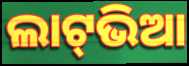
ଲାଟ୍‍ଭିଆ